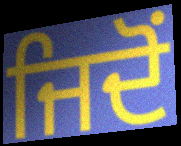
ਜਿਦੋਂ